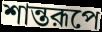
শান্তরূপে